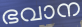
ഭവാന